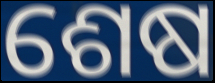
ଶେଷ